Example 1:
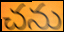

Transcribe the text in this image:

చను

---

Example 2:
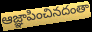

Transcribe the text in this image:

ఆజ్ఞాపించినదంతా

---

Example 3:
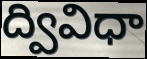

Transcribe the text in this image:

ద్వివిధా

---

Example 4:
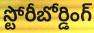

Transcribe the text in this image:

స్టోరీబోర్డింగ్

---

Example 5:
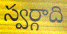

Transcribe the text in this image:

స్వర్గాది